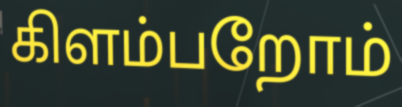
கிளம்பறோம்